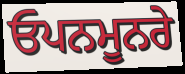
ਓਪਨਮੂਨਰੇ